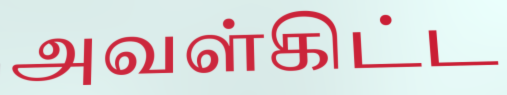
அவள்கிட்ட